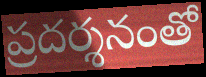
ప్రదర్శనంతో